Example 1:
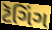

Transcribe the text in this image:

ટૅગિંગ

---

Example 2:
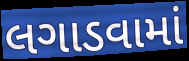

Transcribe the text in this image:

લગાડવામાં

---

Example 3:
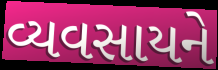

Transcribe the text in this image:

વ્યવસાયને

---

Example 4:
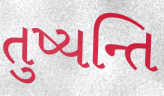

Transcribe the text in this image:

તુષ્યન્તિ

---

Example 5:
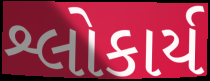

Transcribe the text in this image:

શ્લોકાર્ય